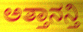
ಅತ್ತಾನನ್ತಿ